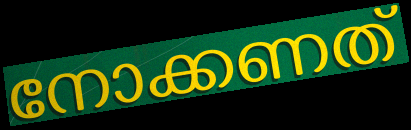
നോക്കണത്